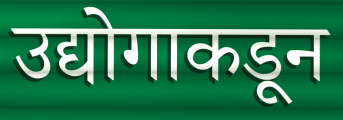
उद्योगाकडून